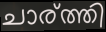
ചാര്ത്തി